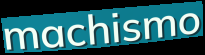
machismo